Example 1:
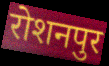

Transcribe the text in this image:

रोशनपुर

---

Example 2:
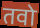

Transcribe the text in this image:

तवो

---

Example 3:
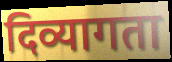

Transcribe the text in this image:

दिव्यागता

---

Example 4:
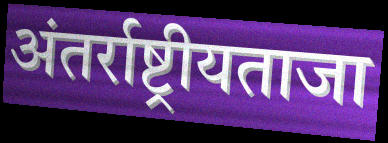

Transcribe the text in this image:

अंतर्राष्ट्रीयताजा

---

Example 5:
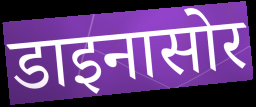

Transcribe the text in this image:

डाइनासोर